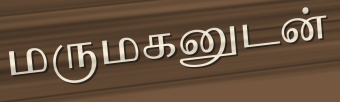
மருமகனுடன்